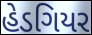
હેડગિયર